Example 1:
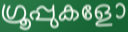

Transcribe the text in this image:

ഗ്രൂപ്പുകളോ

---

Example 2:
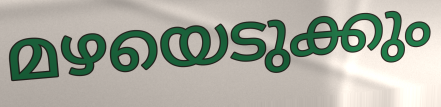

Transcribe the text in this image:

മഴയെടുക്കും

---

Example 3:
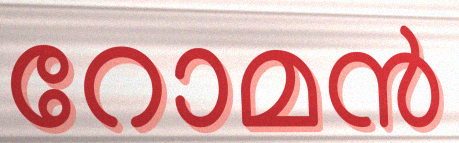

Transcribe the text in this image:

റോമൻ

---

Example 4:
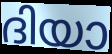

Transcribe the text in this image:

ദിയാ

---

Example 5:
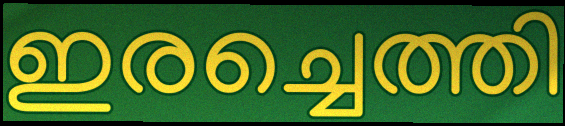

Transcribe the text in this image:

ഇരച്ചെത്തി